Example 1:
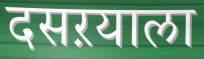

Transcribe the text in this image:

दसऱयाला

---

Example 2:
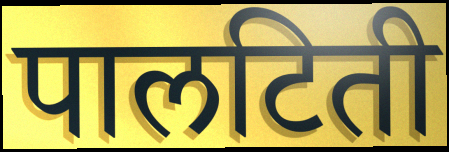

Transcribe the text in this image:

पालटिती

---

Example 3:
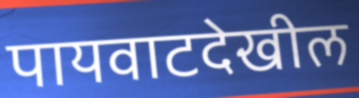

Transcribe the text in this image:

पायवाटदेखील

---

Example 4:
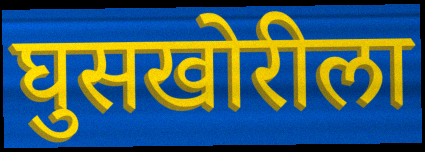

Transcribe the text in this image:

घुसखोरीला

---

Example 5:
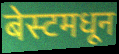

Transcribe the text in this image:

बेस्टमधून